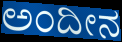
ಅಂದೀನ